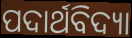
ପଦାର୍ଥବିଦ୍ୟା